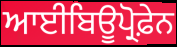
ਆਈਬਿਊਪ੍ਰੋਫ਼ੇਨ